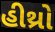
હીથ્રો